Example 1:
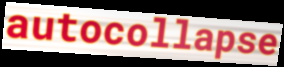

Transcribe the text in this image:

autocollapse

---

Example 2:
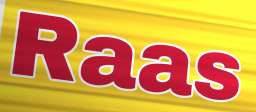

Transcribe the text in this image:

Raas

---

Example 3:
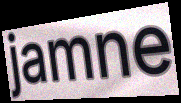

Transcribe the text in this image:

jamne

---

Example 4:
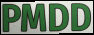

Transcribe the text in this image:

PMDD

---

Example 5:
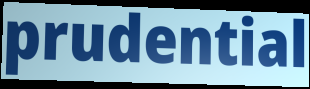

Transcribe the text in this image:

prudential